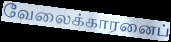
வேலைக்காரனைப்